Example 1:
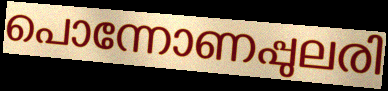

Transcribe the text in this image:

പൊന്നോണപ്പുലരി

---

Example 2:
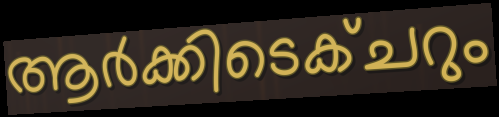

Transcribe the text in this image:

ആർക്കിടെക്ചറും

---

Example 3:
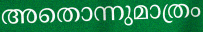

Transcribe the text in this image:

അതൊന്നുമാത്രം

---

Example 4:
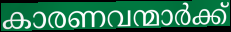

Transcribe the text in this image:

കാരണവന്മാർക്ക്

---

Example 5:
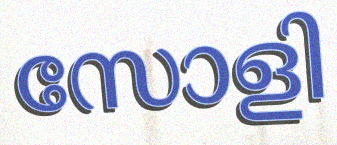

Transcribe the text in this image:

സോളി